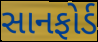
સાનફોર્ડ